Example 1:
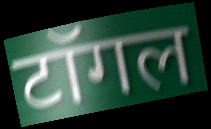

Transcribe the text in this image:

टॉगल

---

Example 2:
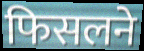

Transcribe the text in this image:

फिसलने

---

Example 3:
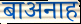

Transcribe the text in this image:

बाअनाह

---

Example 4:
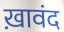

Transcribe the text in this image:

ख़ावंद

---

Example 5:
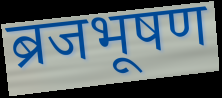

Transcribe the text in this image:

ब्रजभूषण